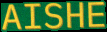
AISHE